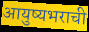
आयुष्यभराची